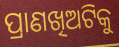
ପ୍ରାଣଖିଅଟିକୁ